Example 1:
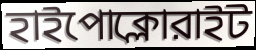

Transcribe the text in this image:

হাইপোক্লোরাইট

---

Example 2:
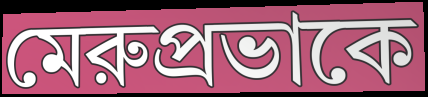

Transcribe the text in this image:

মেরুপ্রভাকে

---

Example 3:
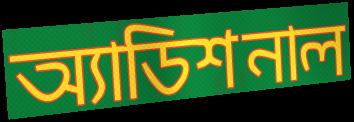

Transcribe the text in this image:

অ্যাডিশনাল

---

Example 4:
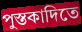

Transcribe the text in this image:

পুস্তকাদিতে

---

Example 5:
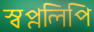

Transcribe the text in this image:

স্বপ্নলিপি